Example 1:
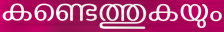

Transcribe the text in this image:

കണ്ടെത്തുകയും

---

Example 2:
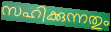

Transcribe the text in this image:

സഹിക്കുന്നതും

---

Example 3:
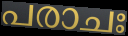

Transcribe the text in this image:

പരാചഃ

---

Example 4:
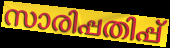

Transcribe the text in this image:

സാരിപ്പതിപ്പ്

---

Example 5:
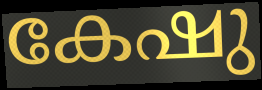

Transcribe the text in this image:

കേഷു